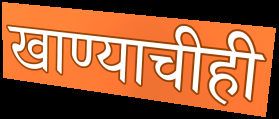
खाण्याचीही